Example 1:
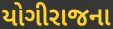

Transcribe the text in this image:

યોગીરાજના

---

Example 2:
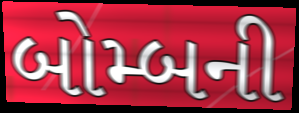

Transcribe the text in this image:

બોમ્બની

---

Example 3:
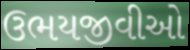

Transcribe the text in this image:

ઉભયજીવીઓ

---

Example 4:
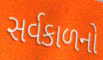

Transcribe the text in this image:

સર્વકાળનો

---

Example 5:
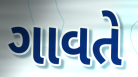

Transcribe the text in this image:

ગાવતે